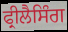
ਫ੍ਰੀਲੈਸਿੰਗ